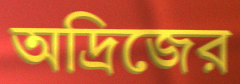
অদ্রিজের